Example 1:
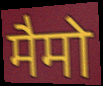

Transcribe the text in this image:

मैमो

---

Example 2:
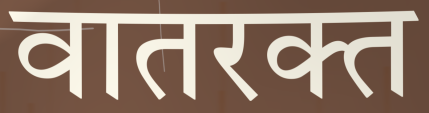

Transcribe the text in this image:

वातरक्त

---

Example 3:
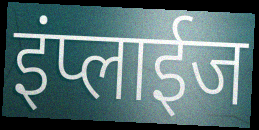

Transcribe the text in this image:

इंप्लाईज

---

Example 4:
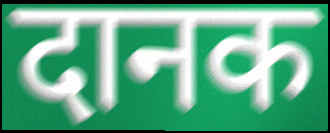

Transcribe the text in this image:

दानक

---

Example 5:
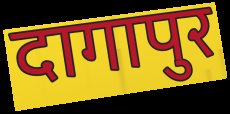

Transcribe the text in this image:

दागापुर